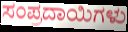
ಸಂಪ್ರದಾಯಿಗಳು